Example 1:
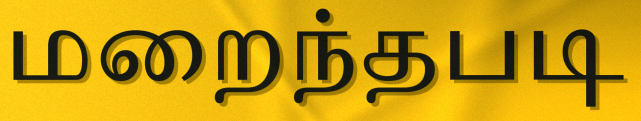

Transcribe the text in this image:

மறைந்தபடி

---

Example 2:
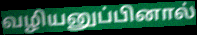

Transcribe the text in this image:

வழியனுப்பினால்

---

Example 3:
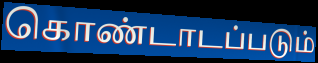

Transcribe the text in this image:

கொண்டாடப்படும்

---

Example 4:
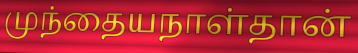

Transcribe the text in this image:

முந்தையநாள்தான்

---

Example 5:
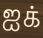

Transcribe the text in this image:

ஐக்